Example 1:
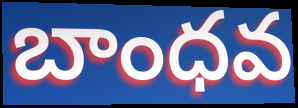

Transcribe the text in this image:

బాంధవ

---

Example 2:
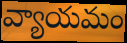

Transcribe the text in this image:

వ్యాయమం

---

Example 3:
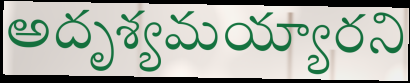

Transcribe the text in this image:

అదృశ్యమయ్యారని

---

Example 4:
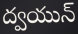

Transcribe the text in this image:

ద్వయున్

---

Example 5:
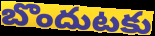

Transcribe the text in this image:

బొందుటకు